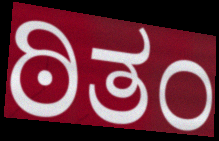
ಠಿತಂ